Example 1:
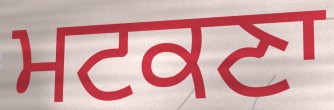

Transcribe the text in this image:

ਮਟਕਣਾ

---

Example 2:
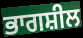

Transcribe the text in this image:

ਭਾਗਸ਼ੀਲ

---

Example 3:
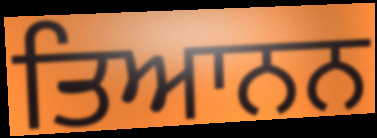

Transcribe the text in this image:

ਤਿਆਨਨ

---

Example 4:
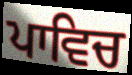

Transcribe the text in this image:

ਪਾਵਿਚ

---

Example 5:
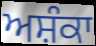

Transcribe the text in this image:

ਅਸ਼ੰਕਾ